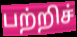
பற்றிச்